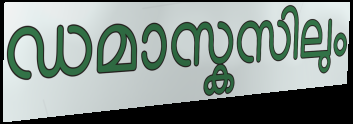
ഡമാസ്കസിലും